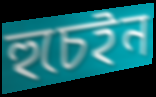
হুচেইন